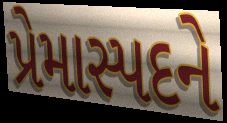
પ્રેમાસ્પદને